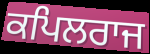
ਕਪਿਲਰਾਜ